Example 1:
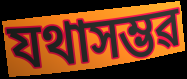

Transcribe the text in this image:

যথাসম্ভৱ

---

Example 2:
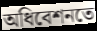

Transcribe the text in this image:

অধিবেশনতে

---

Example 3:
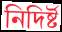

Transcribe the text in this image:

নিদিৰ্ষ্ট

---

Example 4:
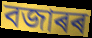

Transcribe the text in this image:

বজাৰৰ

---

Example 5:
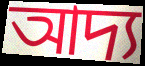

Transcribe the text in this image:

আদ্য